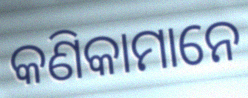
କଣିକାମାନେ